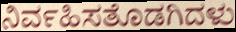
ನಿರ್ವಹಿಸತೊಡಗಿದಳು